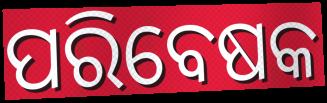
ପରିବେଷକ